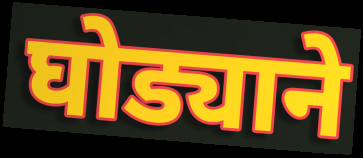
घोड्याने